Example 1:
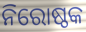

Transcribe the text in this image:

ନିରୋଷ୍ଠକ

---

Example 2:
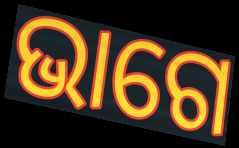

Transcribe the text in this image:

ଭାଗେ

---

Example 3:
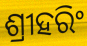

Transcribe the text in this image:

ଶ୍ରୀହରିଂ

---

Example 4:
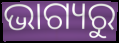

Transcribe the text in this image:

ଭାଗ୍ୟରୁ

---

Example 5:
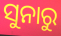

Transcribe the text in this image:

ସୁନାରୁ